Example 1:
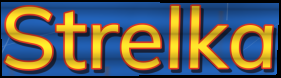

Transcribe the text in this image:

Strelka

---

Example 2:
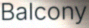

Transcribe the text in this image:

Balcony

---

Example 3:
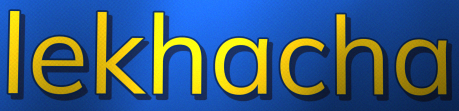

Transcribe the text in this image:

lekhacha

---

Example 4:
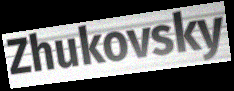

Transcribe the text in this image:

Zhukovsky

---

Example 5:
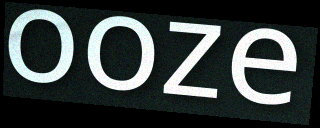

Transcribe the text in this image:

ooze